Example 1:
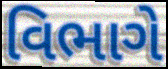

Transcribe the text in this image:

વિભાગે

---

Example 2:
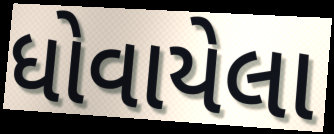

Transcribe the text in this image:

ધોવાયેલા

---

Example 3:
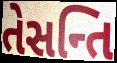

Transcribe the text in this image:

તેસન્તિ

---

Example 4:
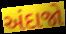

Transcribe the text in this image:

અંદાજો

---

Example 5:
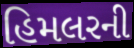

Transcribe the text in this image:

હિમલરની